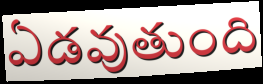
ఏడవుతుంది